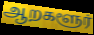
ஆறகளூர்